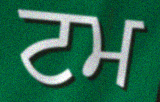
ਟਮ